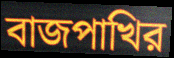
বাজপাখির